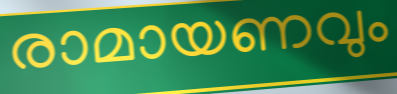
രാമായണവും